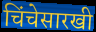
चिंचेसारखी